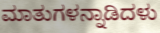
ಮಾತುಗಳನ್ನಾಡಿದಳು